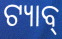
ଟ୍ୟାବ୍